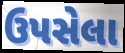
ઉપસેલા